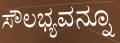
ಸೌಲಭ್ಯವನ್ನೂ